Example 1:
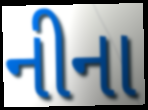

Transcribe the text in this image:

નીના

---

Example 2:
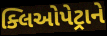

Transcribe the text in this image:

ક્લિઓપેટ્રાને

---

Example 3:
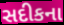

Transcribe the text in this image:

સદીકના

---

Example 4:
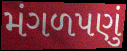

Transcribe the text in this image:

મંગળપણું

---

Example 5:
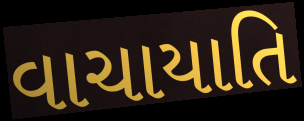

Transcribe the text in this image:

વાચાયાતિ